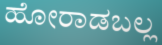
ಹೋರಾಡಬಲ್ಲ